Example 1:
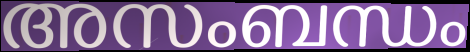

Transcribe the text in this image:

അസംബന്ധം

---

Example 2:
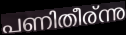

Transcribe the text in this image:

പണിതീര്ന്നു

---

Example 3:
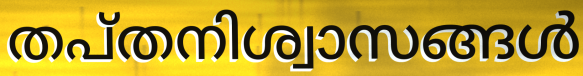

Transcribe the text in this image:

തപ്തനിശ്വാസങ്ങൾ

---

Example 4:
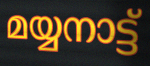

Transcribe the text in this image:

മയ്യനാട്ട്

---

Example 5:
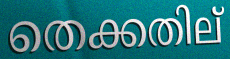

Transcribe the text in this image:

തെക്കതില്